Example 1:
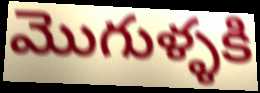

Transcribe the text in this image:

మొగుళ్ళకి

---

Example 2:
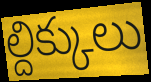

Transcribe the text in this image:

ల్దిక్కులు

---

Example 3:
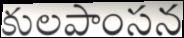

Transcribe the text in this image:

కులపాంసన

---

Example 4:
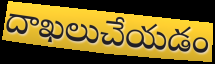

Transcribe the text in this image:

దాఖలుచేయడం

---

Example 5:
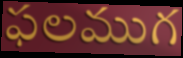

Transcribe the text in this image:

ఫలముగ